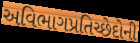
અવિભાગપ્રતિચ્છેદોની